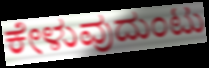
ಕೇಳುವುದುಂಟು